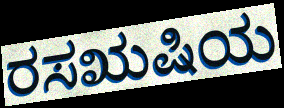
ರಸಋಷಿಯ